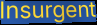
Insurgent